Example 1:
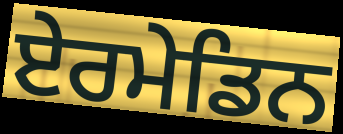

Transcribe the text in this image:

ਏਰਮੇਡਿਨ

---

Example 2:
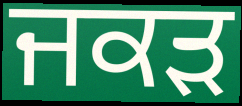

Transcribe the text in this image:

ਜਕਡ਼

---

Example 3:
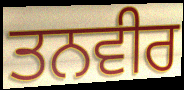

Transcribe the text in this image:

ਤਨਵੀਰ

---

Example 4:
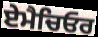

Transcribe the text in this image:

ਏਮੈਚਿਓਰ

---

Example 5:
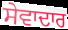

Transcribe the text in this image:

ਸੇਵਾਦਾਰ